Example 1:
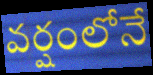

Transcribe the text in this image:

వర్షంలోనే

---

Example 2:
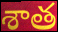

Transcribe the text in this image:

శాత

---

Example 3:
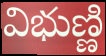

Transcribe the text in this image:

విభుణ్ణి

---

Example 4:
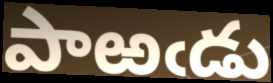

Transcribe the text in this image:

పాఱఁడు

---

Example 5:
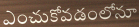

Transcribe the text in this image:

ఎంచుకోవడంలోనూ